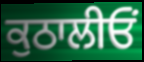
ਕੁਠਾਲੀਓਂ